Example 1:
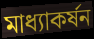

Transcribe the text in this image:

মাধ্যাকর্ষন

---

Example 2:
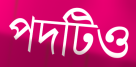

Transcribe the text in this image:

পদটিও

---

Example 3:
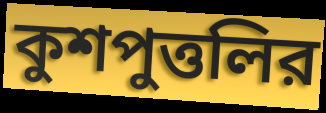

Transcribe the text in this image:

কুশপুত্তলির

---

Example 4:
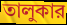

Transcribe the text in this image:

তালুকার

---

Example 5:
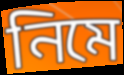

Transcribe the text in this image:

নিমে